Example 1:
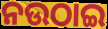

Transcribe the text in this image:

ନଉଠାଇ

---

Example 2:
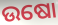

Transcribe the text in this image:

ଉଷୋ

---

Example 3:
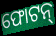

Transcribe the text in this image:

ଫୋଟନ୍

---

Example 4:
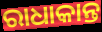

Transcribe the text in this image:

ରାଧାକାନ୍ତ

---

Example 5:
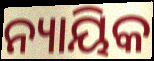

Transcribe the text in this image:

ନ୍ୟାୟିକ